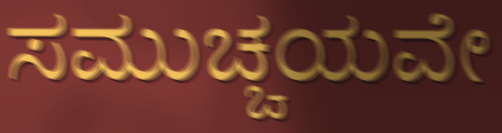
ಸಮುಚ್ಚಯವೇ